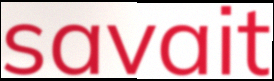
savait